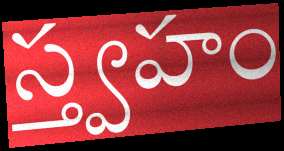
స్త్వహం